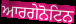
ਆਰਗੇਨੋਟਿਨ